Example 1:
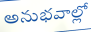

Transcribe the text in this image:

అనుభవాల్లో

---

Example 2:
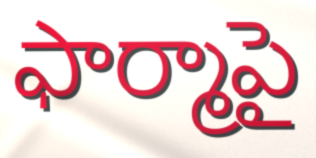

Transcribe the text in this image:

ఫార్మాపై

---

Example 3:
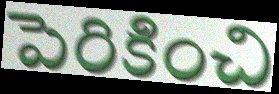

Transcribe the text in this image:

పెరికించి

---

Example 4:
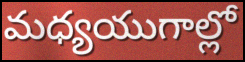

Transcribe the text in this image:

మధ్యయుగాల్లో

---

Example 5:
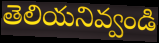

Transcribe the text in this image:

తెలియనివ్వండి